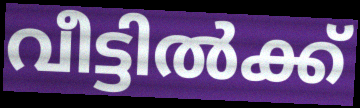
വീട്ടിൽക്ക്